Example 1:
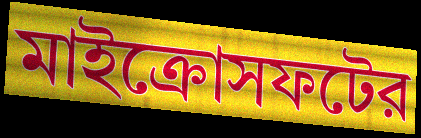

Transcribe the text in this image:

মাইক্রোসফটের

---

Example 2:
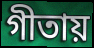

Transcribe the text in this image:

গীতায়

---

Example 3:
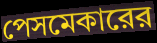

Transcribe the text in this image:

পেসমেকারের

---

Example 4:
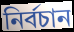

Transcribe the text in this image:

নির্বচান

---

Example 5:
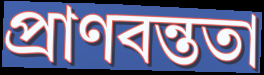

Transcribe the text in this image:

প্রাণবন্ততা